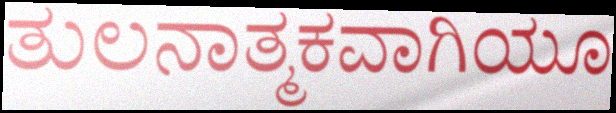
ತುಲನಾತ್ಮಕವಾಗಿಯೂ